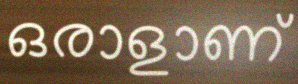
ഒരാളാണ്